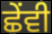
ਛੇੰਵੀ